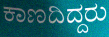
ಕಾಣದಿದ್ದರು